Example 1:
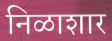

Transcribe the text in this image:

निळाशार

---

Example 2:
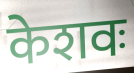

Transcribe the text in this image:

केशवः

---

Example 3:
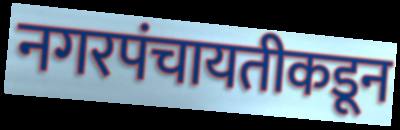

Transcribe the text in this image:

नगरपंचायतीकडून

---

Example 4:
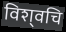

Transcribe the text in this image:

विश्वचि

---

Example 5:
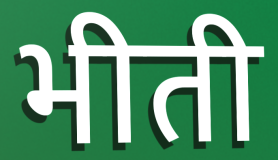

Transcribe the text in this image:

भीती